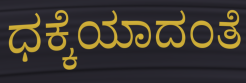
ಧಕ್ಕೆಯಾದಂತೆ